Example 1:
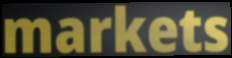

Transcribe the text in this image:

markets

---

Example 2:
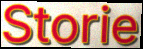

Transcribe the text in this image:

Storie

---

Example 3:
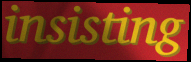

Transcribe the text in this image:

insisting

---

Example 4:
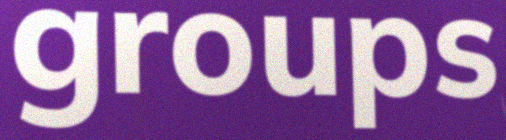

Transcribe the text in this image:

groups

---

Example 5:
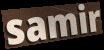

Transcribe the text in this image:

samir